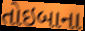
તોઇબાના